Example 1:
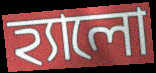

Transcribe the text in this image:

হ্যালো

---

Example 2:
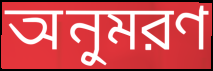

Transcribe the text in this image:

অনুমরণ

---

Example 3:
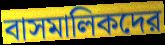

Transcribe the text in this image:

বাসমালিকদের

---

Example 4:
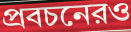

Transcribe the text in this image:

প্রবচনেরও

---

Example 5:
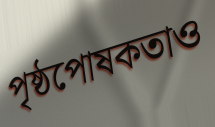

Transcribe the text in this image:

পৃষ্ঠপোষকতাও